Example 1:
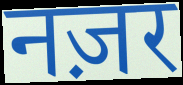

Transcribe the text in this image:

नज़र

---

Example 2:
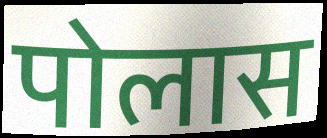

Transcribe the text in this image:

पोलास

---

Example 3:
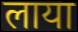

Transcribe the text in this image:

लाया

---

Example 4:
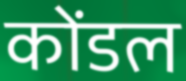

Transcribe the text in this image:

कोंडल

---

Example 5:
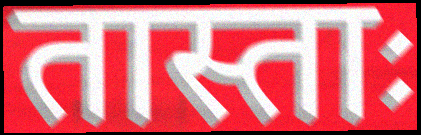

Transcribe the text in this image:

तास्ताः